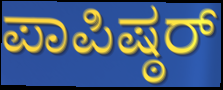
ಪಾಪಿಷ್ಠರ್